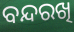
ବନ୍ଦରଖି